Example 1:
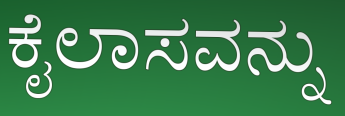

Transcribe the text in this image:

ಕೈಲಾಸವನ್ನು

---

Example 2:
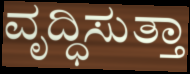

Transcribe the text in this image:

ವೃದ್ಧಿಸುತ್ತಾ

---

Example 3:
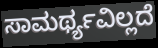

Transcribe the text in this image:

ಸಾಮರ್ಥ್ಯವಿಲ್ಲದೆ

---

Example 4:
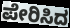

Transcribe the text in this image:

ಪೇರಿಸಿದ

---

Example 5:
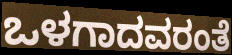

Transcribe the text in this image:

ಒಳಗಾದವರಂತೆ